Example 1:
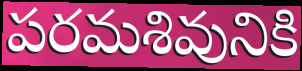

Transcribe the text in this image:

పరమశివునికి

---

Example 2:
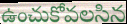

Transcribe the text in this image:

ఉంచుకోవలసిన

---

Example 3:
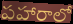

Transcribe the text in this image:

పహారాలో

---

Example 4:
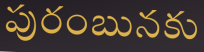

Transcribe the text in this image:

పురంబునకు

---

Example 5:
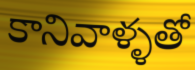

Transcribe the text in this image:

కానివాళ్ళతో